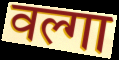
वल्गा